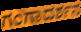
ಗಂಗಾದರ್ಶನ